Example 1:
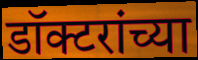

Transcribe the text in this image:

डॉक्टरांच्या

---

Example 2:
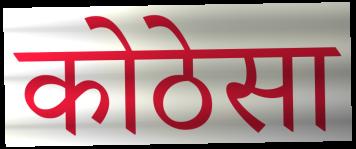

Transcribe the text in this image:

कोठेसा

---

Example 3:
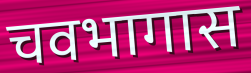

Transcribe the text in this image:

चवभागास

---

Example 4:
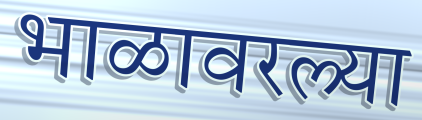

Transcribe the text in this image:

भाळावरल्या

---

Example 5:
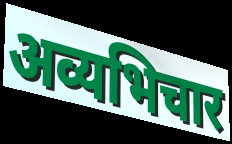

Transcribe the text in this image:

अव्यभिचार